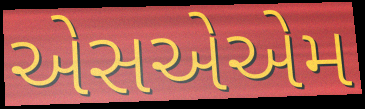
એસએએમ